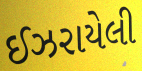
ઈઝરાયેલી